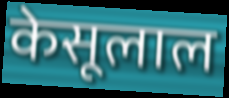
केसूलाल